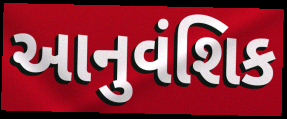
આનુવંશિક